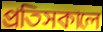
প্রতিসকালে